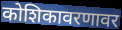
कोशिकावरणावर